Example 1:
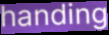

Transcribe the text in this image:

handing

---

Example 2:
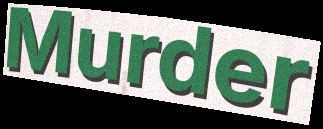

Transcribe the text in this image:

Murder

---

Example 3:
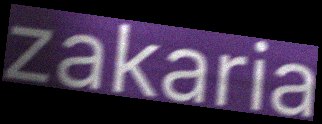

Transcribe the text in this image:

zakaria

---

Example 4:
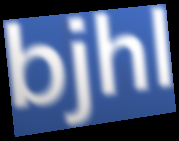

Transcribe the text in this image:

bjhl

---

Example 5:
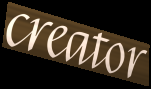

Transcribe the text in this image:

creator